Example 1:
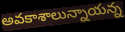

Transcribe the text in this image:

అవకాశాలున్నాయన్న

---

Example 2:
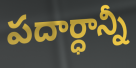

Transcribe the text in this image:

పదార్ధాన్నీ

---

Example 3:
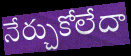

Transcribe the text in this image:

నేర్చుకోలేదా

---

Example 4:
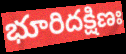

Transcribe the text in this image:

భూరిదక్షిణః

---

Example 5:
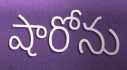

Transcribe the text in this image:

షారోను